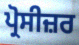
ਪ੍ਰੋਸੀਜ਼ਰ